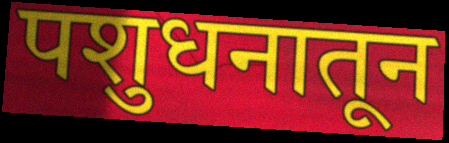
पशुधनातून